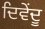
ਦਿਵੇਂਦੂ